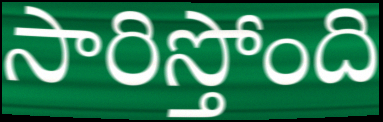
సారిస్తోంది